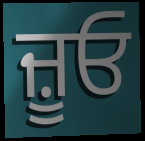
ਜ਼ੂਓ